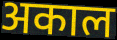
अकाल